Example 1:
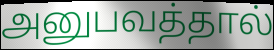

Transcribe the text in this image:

அனுபவத்தால்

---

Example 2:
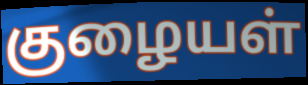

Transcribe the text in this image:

குழையள்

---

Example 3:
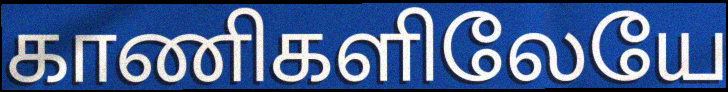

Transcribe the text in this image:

காணிகளிலேயே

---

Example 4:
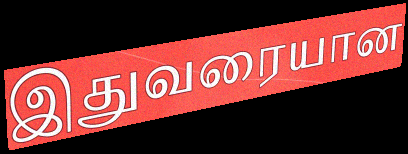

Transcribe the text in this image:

இதுவரையான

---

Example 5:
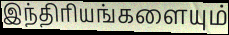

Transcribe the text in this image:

இந்திரியங்களையும்